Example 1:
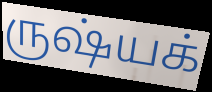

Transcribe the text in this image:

ருஷ்யக்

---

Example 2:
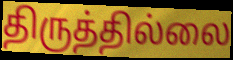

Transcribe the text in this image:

திருத்தில்லை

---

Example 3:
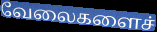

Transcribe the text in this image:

வேலைகளைச்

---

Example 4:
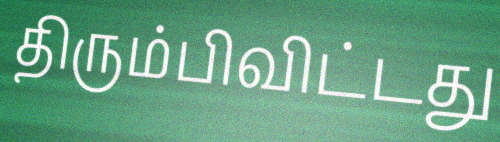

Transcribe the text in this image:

திரும்பிவிட்டது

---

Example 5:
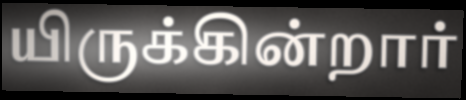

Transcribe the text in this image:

யிருக்கின்றார்